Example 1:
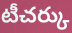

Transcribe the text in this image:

టీచర్కు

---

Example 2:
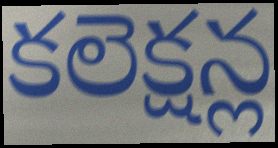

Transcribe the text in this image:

కలెక్షన్ల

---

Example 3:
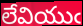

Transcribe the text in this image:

లేవియుఁ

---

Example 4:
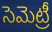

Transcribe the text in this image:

సెమెట్రీ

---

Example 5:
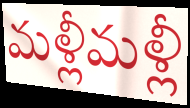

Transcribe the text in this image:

మళ్లీమళ్లీ